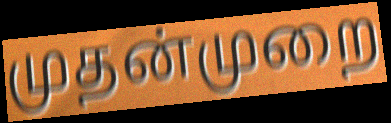
முதன்முறை